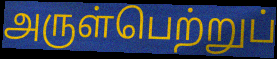
அருள்பெற்றுப்